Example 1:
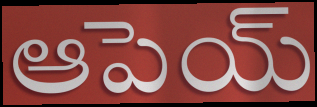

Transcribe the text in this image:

ఆపెయ్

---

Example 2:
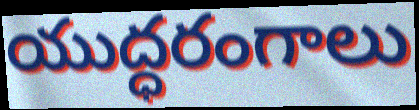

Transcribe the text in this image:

యుద్ధరంగాలు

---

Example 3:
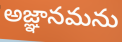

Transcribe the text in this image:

అజ్ఞానమను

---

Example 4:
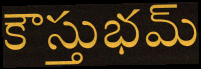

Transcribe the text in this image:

కౌస్తుభమ్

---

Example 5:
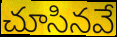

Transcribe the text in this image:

చూసినవే